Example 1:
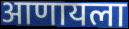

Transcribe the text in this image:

आणायला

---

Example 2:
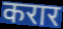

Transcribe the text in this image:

करार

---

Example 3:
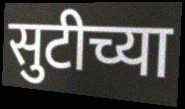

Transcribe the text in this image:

सुटीच्या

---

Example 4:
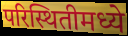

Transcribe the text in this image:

परिस्थितीमध्ये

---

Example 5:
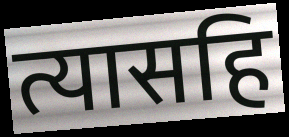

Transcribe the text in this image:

त्यासहि